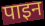
पाइन